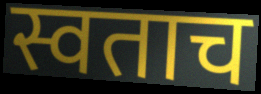
स्वताच